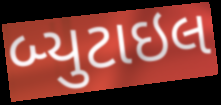
બ્યુટાઇલ